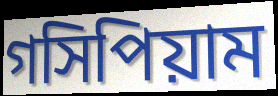
গসিপিয়াম